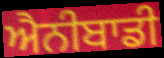
ਐਨੀਬਾਡੀ